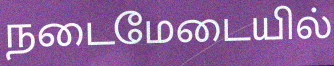
நடைமேடையில்